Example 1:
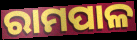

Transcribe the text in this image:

ରାମପାଳ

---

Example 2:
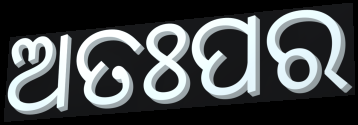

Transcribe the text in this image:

ଅତଃପର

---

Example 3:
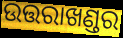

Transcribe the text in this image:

ଉତ୍ତରାଖଣ୍ଡର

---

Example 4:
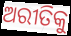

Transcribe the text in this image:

ଅରୀତିକୁ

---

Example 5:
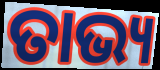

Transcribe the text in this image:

ତାଭ୍ୟ